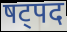
षट्पद